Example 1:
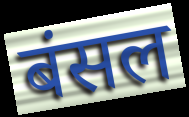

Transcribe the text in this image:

बंसल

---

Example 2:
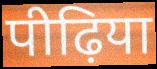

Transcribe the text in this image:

पीढ़िया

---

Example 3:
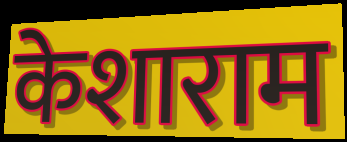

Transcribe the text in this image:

केशाराम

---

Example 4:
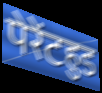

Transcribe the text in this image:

पेरेंटहुड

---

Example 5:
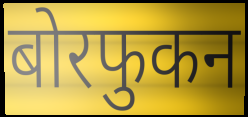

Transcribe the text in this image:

बोरफुकन